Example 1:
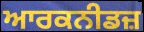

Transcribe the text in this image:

ਆਰਕਨੀਡਜ਼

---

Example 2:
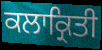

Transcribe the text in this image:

ਕਲਾਕ੍ਰਿਤੀ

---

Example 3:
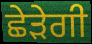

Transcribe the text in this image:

ਛੇੜੇਗੀ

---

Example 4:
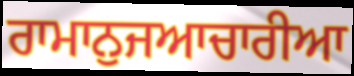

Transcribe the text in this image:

ਰਾਮਾਨੁਜਆਚਾਰੀਆ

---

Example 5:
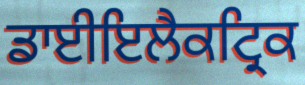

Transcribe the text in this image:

ਡਾਈਇਲੈਕਟ੍ਰਿਕ